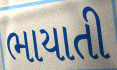
ભાયાતી